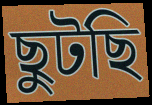
ছুটছি